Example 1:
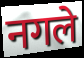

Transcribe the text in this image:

नगले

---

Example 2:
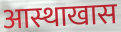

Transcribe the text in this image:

आस्थाखास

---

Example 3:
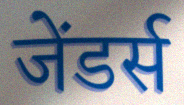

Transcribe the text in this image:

जेंडर्स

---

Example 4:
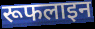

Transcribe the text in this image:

रूफलाइन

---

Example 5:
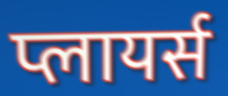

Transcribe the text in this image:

प्लायर्स